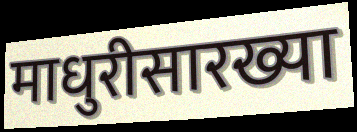
माधुरीसारख्या